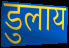
डुलाय